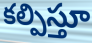
కల్పిస్తూ